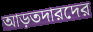
আড়তদারদের